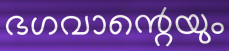
ഭഗവാന്റെയും